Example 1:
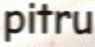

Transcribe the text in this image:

pitru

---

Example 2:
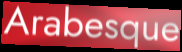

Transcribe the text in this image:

Arabesque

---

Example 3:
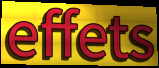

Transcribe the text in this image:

effets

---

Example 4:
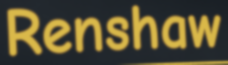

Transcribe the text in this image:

Renshaw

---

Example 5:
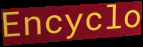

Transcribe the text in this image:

Encyclo